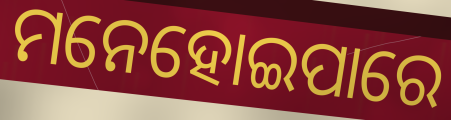
ମନେହୋଇପାରେ